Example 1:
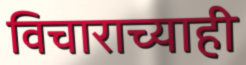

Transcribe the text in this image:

विचाराच्याही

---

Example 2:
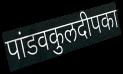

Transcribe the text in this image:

पांडवकुलदीपका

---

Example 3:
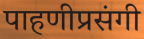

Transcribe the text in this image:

पाहणीप्रसंगी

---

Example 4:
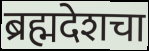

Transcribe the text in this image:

ब्रह्मदेशचा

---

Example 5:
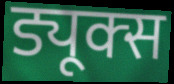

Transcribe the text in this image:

ड्यूक्‍स